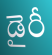
డైరీ